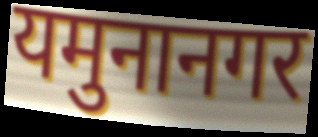
यमुनानगर